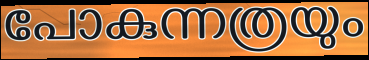
പോകുന്നത്രയും